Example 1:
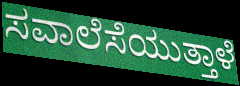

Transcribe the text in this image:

ಸವಾಲೆಸೆಯುತ್ತಾಳೆ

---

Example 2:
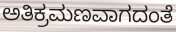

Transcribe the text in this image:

ಅತಿಕ್ರಮಣವಾಗದಂತೆ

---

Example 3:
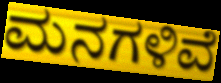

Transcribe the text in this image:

ಮನಗಳಿವೆ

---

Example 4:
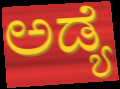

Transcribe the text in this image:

ಅಡ್ಯೆ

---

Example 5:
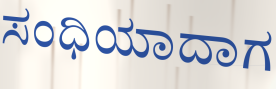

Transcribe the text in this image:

ಸಂಧಿಯಾದಾಗ